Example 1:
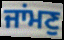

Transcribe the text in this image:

ਜਾਂਮਣੁ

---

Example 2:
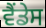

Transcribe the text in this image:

ਵੈਂਡੇਸ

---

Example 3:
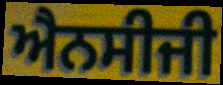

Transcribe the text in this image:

ਐਨਸੀਜੀ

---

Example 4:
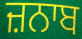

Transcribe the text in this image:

ਜ਼ਨਾਬ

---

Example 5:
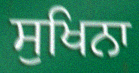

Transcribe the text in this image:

ਸੁਖਿਨਾ